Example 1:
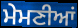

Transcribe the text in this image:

ਮੇਮਣੀਆਂ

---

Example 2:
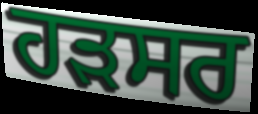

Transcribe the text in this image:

ਹੜਸਰ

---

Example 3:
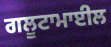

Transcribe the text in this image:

ਗਲੂਟਾਮਾਈਲ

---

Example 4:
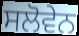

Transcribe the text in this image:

ਸਲੋਵੇਨ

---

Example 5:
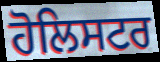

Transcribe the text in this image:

ਹੋਲਿਸਟਰ